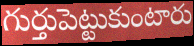
గుర్తుపెట్టుకుంటారు